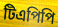
টিএপিপি